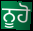
ਨੂਹੋ